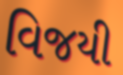
વિજયી